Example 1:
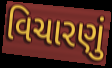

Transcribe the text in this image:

વિચારણું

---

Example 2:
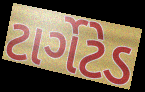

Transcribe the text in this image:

ટાર્ગેટેડ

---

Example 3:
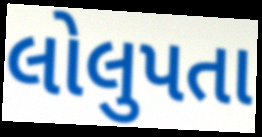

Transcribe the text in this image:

લોલુપતા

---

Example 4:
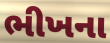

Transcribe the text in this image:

ભીખના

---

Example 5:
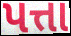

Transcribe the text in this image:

પત્તા